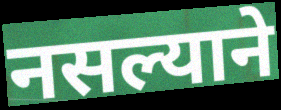
नसल्याने